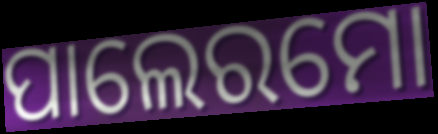
ପାଲେରମୋ